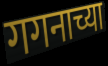
गगनाच्या